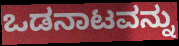
ಒಡನಾಟವನ್ನು